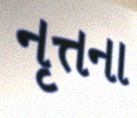
નૃત્તના